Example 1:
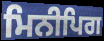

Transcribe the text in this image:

ਮਿਨੀਪਿਗ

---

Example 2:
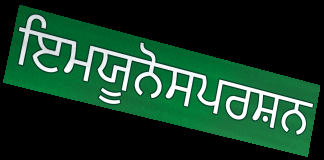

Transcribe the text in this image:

ਇਮਯੂਨੋਸਪਰਸ਼ਨ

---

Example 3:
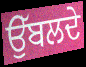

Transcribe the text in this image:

ਉੱਬਲਦੇ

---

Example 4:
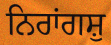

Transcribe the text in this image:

ਨਿਰਾਂਗਸ਼ੁ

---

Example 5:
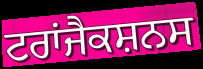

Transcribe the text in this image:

ਟਰਾਂਜੈਕਸ਼ਨਸ